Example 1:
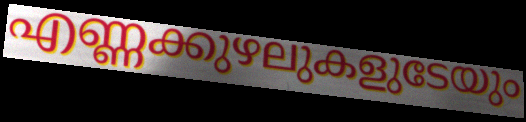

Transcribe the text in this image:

എണ്ണക്കുഴലുകളുടേയും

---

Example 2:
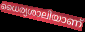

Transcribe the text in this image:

ധൈര്യശാലിയാണ്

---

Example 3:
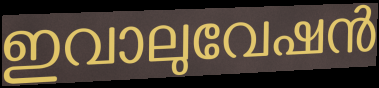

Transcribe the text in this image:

ഇവാലുവേഷൻ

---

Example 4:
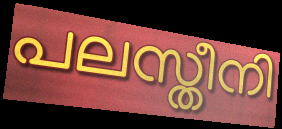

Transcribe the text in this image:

പലസ്തീനി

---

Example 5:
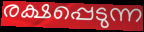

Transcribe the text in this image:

രക്ഷപ്പെടുന്ന